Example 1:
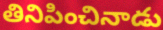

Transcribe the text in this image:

తినిపించినాడు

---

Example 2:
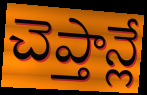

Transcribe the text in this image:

చెప్తాన్లే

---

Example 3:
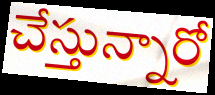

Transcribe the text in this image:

చేస్తున్నారో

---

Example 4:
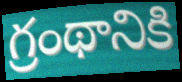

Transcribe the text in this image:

గ్రంథానికి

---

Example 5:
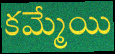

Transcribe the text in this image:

కమ్మేయి